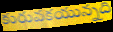
కురువకయున్నది